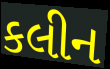
કલીન